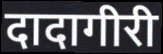
दादागीरी